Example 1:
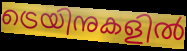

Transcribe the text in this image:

ട്രെയിനുകളിൽ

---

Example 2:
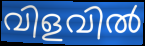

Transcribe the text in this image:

വിളവിൽ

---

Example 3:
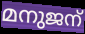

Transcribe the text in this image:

മനുജന്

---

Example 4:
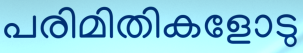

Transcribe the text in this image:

പരിമിതികളോടു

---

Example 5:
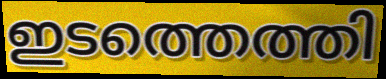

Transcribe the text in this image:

ഇടത്തെത്തി